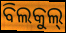
ବିଲକୁଲ୍